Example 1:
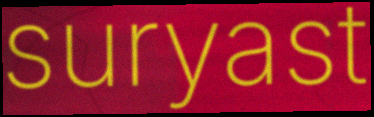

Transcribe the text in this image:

suryast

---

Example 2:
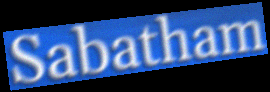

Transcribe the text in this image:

Sabatham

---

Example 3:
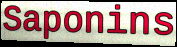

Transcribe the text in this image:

Saponins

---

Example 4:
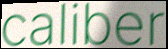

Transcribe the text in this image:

caliber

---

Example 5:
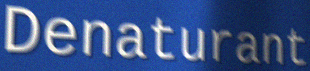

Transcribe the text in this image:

Denaturant